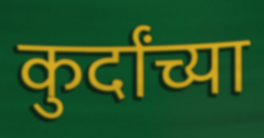
कुर्दांच्या